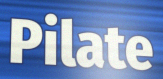
Pilate